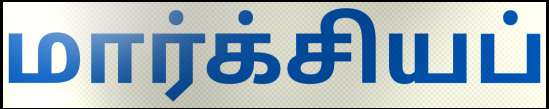
மார்க்சியப்